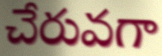
చేరువగా